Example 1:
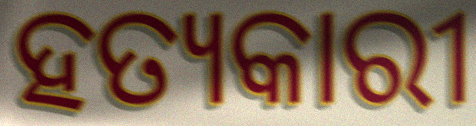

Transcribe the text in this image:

ହତ୍ୟକାରୀ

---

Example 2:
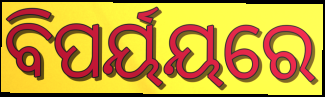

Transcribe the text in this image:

ବିପର୍ୟୟରେ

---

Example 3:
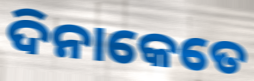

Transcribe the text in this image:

ଦିନାକେତେ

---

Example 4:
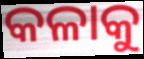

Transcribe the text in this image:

କଳାକୁ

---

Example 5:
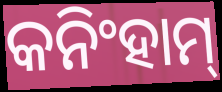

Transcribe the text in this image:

କନିଂହାମ୍